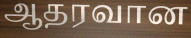
ஆதரவான